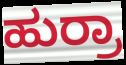
ಹುರ್ರಾ